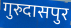
गुरुदासपुर